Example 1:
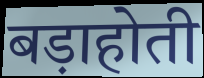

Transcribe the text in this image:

बड़ाहोती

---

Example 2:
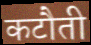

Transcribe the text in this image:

कटौती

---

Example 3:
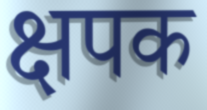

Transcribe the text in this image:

क्षपक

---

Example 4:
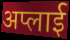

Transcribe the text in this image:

अप्‍लाई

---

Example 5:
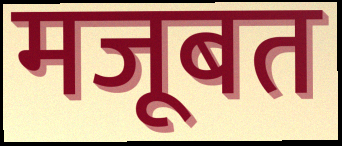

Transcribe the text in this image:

मजूबत